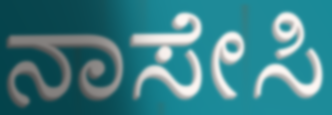
ನಾಸೇಸಿ